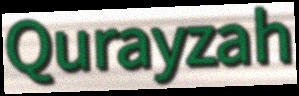
Qurayzah